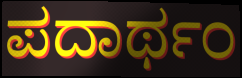
ಪದಾರ್ಥಂ